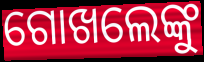
ଗୋଖଲେଙ୍କୁ